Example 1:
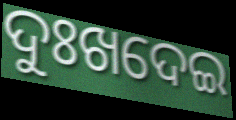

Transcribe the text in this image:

ଦୁଃଖଦେଇ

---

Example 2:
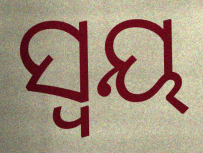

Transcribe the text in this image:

ସ୍ବୟ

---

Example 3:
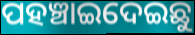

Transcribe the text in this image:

ପହଞ୍ଚାଇଦେଇଛୁ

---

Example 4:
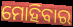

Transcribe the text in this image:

ମୋହିବାର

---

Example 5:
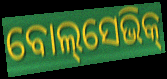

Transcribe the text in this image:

ବୋଲ୍‌ସେଭିକ୍